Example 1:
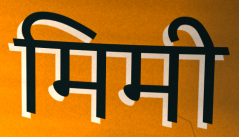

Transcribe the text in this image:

मिमी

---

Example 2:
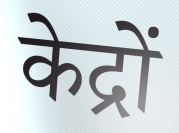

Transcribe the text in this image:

केद्रों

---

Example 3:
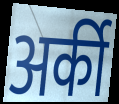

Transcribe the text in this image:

अर्की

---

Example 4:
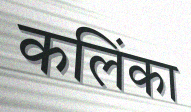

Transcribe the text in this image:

कलिंका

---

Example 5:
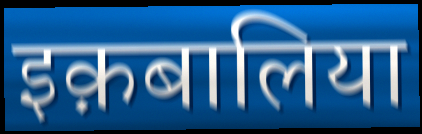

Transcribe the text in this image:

इक़बालिया